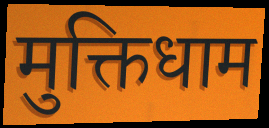
मुक्तिधाम